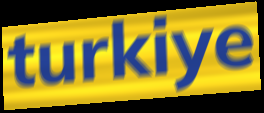
turkiye